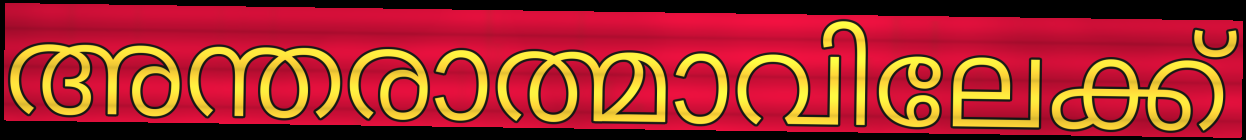
അന്തരാത്മാവിലേക്ക്